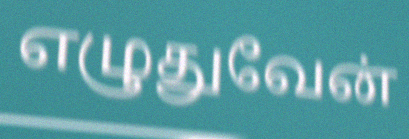
எழுதுவேன்